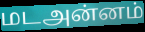
மடஅன்னம்